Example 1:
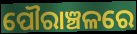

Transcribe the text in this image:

ପୌରାଞ୍ଚଳରେ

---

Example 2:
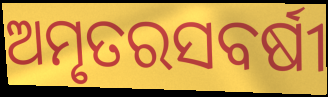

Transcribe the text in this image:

ଅମୃତରସବର୍ଷୀ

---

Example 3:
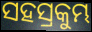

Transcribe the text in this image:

ସହସ୍ରକୁମ୍ଭ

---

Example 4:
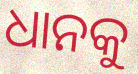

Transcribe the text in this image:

ଧାନକୁ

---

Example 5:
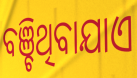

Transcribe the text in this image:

ବଞ୍ଚିଥିବାଯାଏ